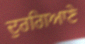
ਦੁਰਗਿਆਣੇ